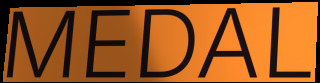
MEDAL